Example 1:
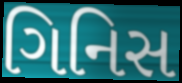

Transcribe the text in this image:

ગિનિસ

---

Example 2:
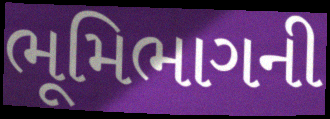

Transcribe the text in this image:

ભૂમિભાગની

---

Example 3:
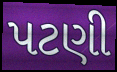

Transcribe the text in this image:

પટણી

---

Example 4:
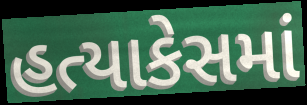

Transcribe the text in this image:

હત્યાકેસમાં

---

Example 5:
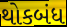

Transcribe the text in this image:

થોકબંધ